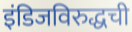
इंडिजविरुद्धची